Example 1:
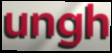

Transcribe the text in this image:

ungh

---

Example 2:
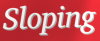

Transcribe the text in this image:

Sloping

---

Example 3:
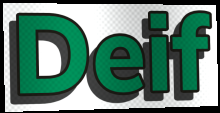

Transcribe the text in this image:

Deif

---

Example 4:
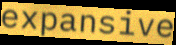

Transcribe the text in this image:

expansive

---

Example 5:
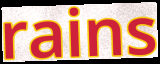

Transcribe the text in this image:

rains